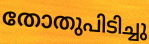
തോതുപിടിച്ചു